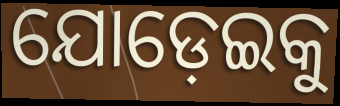
ଯୋଡ଼େଇକୁ